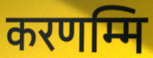
करणम्मि